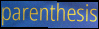
parenthesis